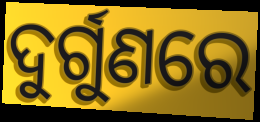
ଦୁର୍ଗୁଣରେ